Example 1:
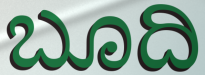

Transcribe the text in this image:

ಬೂದಿ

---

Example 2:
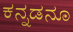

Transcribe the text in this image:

ಕನ್ನಡನೂ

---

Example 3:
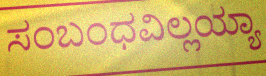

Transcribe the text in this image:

ಸಂಬಂಧವಿಲ್ಲಯ್ಯಾ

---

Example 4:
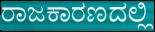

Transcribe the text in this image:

ರಾಜಕಾರಣದಲ್ಲಿ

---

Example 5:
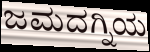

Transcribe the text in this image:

ಜಮದಗ್ನಿಯ